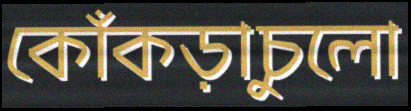
কোঁকড়াচুলো